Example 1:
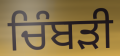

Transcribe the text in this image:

ਚਿੰਬੜੀ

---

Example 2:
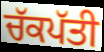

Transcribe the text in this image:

ਚੱਕਪੱਤੀ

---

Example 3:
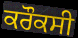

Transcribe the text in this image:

ਕਰੌਕਸੀ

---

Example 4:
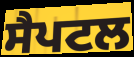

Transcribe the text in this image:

ਸੈਪਟਲ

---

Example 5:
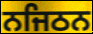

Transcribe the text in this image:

ਨਜਿਠਨ